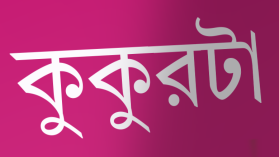
কুকুরটা